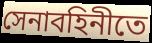
সেনাবহিনীতে